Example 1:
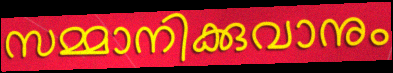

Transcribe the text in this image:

സമ്മാനിക്കുവാനും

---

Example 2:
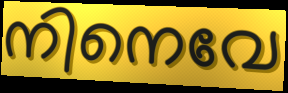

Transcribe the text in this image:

നിനെവേ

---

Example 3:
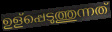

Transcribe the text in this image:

ഉള്പ്പെടുത്തുന്നത്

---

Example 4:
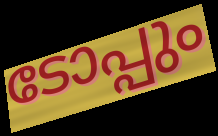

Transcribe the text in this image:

ടോപ്പും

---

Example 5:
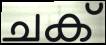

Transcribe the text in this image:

ചക്